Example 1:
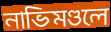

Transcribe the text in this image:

নাভিমণ্ডলে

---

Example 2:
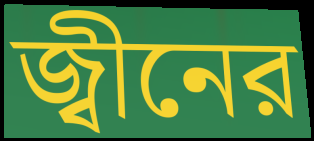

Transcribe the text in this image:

জ্বীনের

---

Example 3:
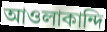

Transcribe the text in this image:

আওলাকান্দি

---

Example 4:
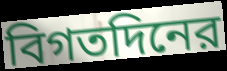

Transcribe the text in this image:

বিগতদিনের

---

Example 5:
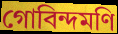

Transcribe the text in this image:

গোবিন্দমণি